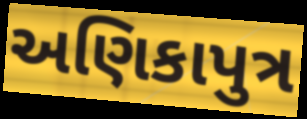
અણિકાપુત્ર